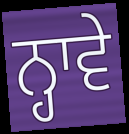
ਨ੍ਹਾਵੇ